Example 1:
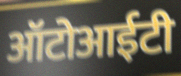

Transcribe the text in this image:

ऑटोआईटी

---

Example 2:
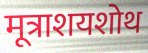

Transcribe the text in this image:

मूत्राशयशोथ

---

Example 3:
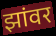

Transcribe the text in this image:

झांवर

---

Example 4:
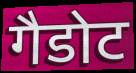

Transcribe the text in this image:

गैडोट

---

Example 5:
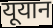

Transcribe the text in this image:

यूयान